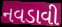
નવડાવી